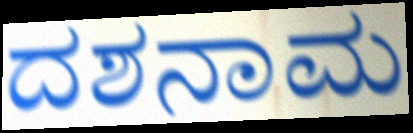
ದಶನಾಮ